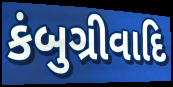
કંબુગ્રીવાદિ